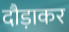
दौड़ाकर